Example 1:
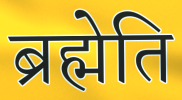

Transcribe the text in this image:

ब्रह्मेति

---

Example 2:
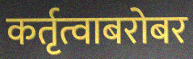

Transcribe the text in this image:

कर्तृत्वाबरोबर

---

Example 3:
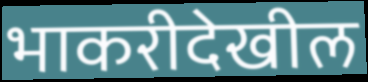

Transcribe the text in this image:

भाकरीदेखील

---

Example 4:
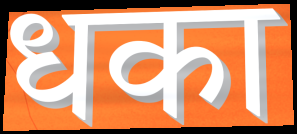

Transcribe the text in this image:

धका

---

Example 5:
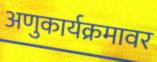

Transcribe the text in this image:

अणुकार्यक्रमावर